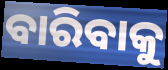
ବାରିବାକୁ